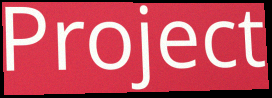
Project